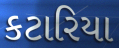
કટારિયા